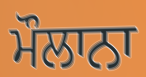
ਮੌਲਾਨਾ